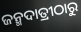
ଜନ୍ମଦାତ୍ରୀଠାରୁ